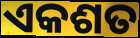
ଏକଶତ